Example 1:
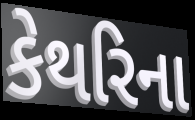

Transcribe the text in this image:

કેથરિના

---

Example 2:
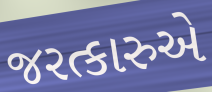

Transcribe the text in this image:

જરત્કારુએ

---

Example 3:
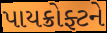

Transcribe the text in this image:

પાયક્રોફ્ટને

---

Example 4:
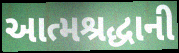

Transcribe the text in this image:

આત્મશ્રદ્ધાની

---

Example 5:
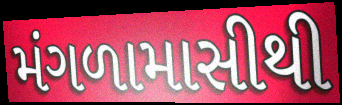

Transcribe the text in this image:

મંગળામાસીથી